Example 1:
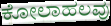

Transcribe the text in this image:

ಕೋಲಾಹಲವು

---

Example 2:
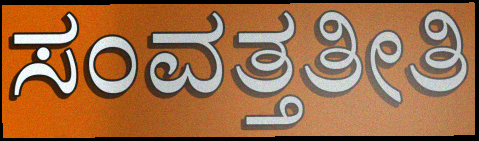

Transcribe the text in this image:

ಸಂವತ್ತತೀತಿ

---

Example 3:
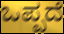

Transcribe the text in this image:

ಒಪ್ಪದೆ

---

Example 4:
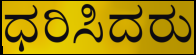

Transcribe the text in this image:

ಧರಿಸಿದರು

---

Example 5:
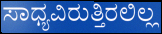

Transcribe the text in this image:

ಸಾಧ್ಯವಿರುತ್ತಿರಲಿಲ್ಲ